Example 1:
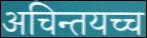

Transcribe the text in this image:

अचिन्तयच्च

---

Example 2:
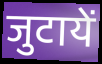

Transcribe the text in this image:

जुटायें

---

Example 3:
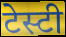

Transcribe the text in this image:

टेस्‍टी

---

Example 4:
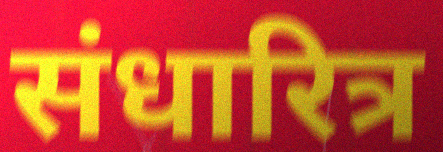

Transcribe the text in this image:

संधारित्र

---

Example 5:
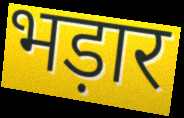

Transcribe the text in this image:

भड़ार